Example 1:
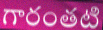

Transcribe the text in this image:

గారంతటి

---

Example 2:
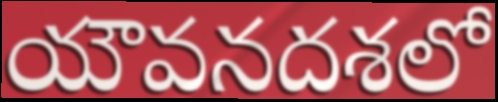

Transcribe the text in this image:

యౌవనదశలో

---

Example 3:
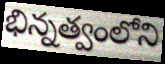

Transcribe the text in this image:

భిన్నత్వంలోని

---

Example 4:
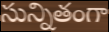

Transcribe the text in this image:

సున్నితంగా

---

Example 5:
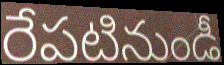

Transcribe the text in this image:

రేపటినుండీ